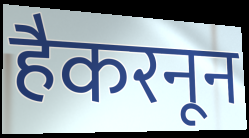
हैकरनून